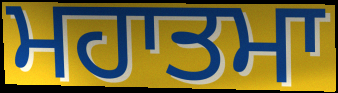
ਮਹਾਤਮਾ